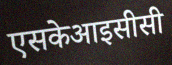
एसकेआइसीसी